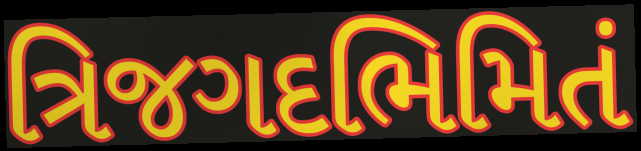
ત્રિજગદભિમિતં